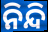
ନିନ୍ଦି